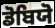
ਡੋਬਿਯੋ